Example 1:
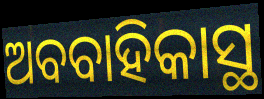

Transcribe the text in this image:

ଅବବାହିକାସ୍ଥ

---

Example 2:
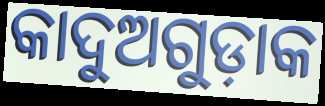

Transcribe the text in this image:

କାଦୁଅଗୁଡ଼ାକ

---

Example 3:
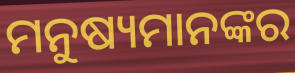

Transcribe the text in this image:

ମନୁଷ୍ୟମାନଙ୍କର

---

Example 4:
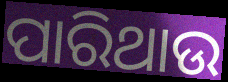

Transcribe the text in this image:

ପାରିଥାଉ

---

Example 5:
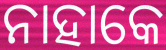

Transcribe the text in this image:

ନାହାକେ